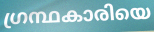
ഗ്രന്ഥകാരിയെ